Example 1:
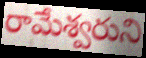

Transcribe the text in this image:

రామేశ్వరుని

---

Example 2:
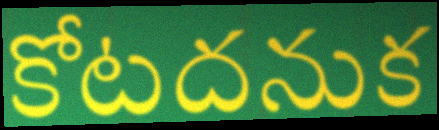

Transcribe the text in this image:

కోటదనుక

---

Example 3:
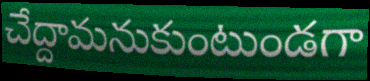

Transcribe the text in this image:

చేద్దామనుకుంటుండగా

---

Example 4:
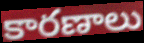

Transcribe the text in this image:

కారణాలు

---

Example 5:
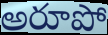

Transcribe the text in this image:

అరూపో